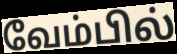
வேம்பில்